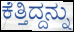
ಕೆತ್ತಿದ್ದನ್ನು